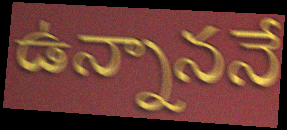
ఉన్నాననే